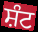
ਸ਼ੰਟ